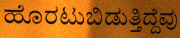
ಹೊರಟುಬಿಡುತ್ತಿದ್ದೆವು